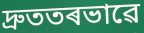
দ্ৰুততৰভাৱে